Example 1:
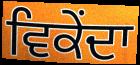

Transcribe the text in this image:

ਵਿਕੇਂਦਾ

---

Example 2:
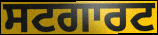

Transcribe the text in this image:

ਸਟਗਾਰਟ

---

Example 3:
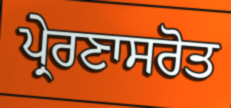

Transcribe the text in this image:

ਪ੍ਰੇਰਣਾਸਰੋਤ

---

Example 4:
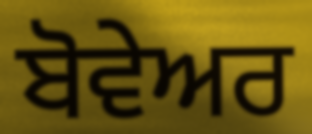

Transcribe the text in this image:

ਬੋਵੇਅਰ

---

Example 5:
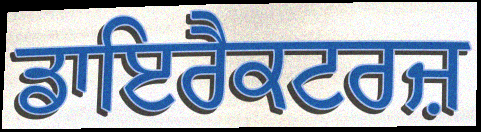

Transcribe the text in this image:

ਡਾਇਰੈਕਟਰਜ਼